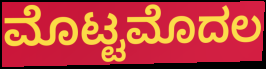
ಮೊಟ್ಟಮೊದಲ